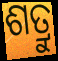
ଶତ୍ରୁ